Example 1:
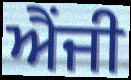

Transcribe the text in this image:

ਐਂਜੀ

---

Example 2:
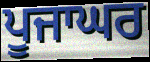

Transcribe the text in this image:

ਪੂਜਾਘਰ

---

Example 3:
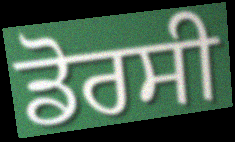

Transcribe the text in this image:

ਡੋਰਸੀ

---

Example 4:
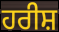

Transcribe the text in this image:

ਹਰੀਸ਼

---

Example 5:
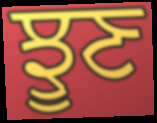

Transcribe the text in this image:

ਝੂਣ